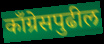
काँग्रेसपुढील